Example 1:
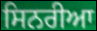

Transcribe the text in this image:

ਸਿਨਰੀਆ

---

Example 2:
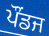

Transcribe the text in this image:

ਪੌਂਡਜ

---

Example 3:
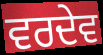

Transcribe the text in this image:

ਵਰਦੇਵ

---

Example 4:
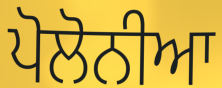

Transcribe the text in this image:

ਪੋਲੋਨੀਆ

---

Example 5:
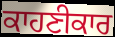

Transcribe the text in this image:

ਕਾਹਣੀਕਾਰ